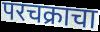
परचक्राचा